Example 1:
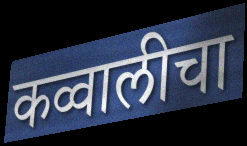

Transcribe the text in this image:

कव्वालीचा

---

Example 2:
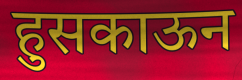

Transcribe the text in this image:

हुसकाऊन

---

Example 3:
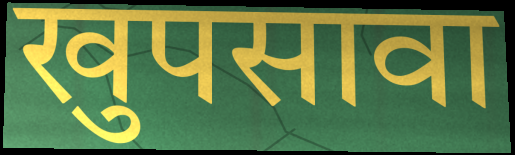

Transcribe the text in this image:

खुपसावा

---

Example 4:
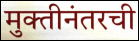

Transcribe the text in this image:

मुक्तीनंतरची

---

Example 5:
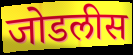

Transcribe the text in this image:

जोडलीस